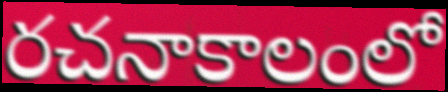
రచనాకాలంలో